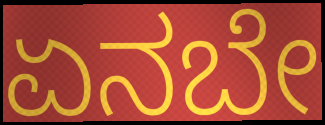
ಏನಬೇ